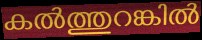
കൽത്തുറങ്കിൽ